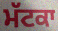
ਮੱਟਕਾ